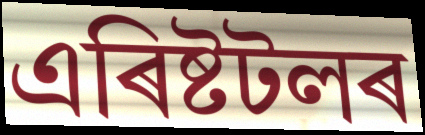
এৰিষ্টটলৰ